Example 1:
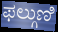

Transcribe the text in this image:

ಫಲ್ಗುಣಿ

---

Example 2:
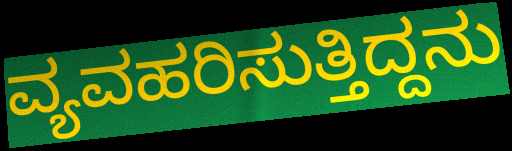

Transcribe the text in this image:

ವ್ಯವಹರಿಸುತ್ತಿದ್ದನು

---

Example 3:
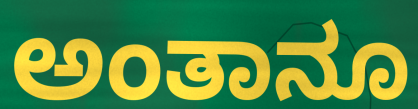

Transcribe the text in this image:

ಅಂತಾನೂ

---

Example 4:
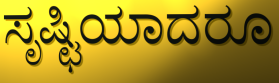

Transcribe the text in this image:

ಸೃಷ್ಟಿಯಾದರೂ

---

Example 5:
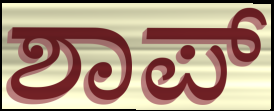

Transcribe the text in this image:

ಶಾಪ್